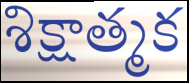
శిక్షాత్మక